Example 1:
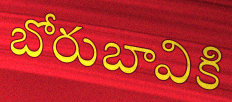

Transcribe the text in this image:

బోరుబావికి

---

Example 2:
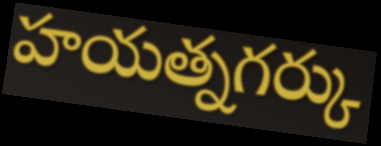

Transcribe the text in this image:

హయత్నగర్కు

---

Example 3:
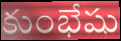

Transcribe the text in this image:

కుంభేషు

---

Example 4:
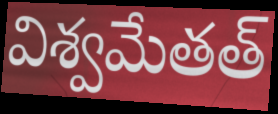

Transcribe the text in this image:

విశ్వమేతత్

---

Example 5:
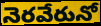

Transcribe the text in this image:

నెరవేరునో